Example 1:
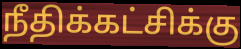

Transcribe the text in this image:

நீதிக்கட்சிக்கு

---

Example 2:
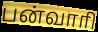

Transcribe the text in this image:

பன்வாரி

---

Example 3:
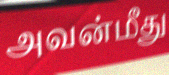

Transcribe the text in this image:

அவன்மீது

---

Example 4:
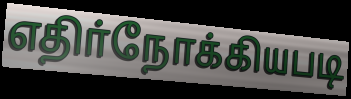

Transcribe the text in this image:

எதிர்நோக்கியபடி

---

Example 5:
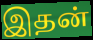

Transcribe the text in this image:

இதன்